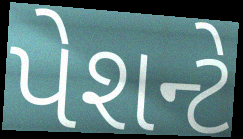
પેશન્ટે